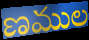
ణముల